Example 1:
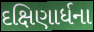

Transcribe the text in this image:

દક્ષિણાર્ધના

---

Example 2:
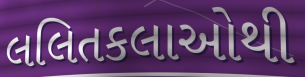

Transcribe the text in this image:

લલિતકલાઓથી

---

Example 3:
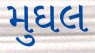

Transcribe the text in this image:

મુઘલ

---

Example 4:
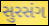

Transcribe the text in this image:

સુરસંગ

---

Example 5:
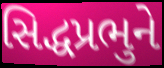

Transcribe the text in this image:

સિદ્ધપ્રભુને